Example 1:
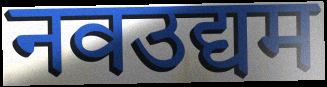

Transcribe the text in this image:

नवउद्यम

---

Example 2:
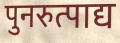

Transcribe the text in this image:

पुनरुत्पाद्य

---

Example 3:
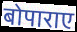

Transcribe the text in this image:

बोपाराए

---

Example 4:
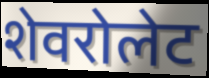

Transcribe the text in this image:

शेवरोलेट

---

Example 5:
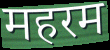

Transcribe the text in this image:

महरम